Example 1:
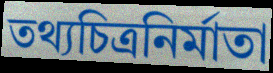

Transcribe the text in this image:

তথ্যচিত্রনির্মাতা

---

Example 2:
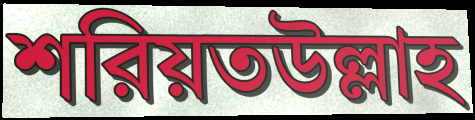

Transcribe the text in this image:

শরিয়তউল্লাহ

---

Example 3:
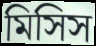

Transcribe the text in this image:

মিসিস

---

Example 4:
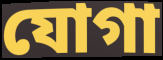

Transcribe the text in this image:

যোগা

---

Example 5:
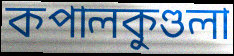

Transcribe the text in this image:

কপালকুণ্ডলা